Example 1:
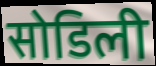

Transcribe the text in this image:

सोडिली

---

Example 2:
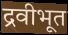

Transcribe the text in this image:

द्रवीभूत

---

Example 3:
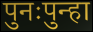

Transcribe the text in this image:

पुनःपुन्हा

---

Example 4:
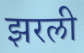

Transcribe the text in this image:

झरली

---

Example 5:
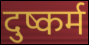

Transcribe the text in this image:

दुष्कर्म